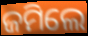
ଜମିଲେ